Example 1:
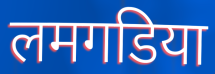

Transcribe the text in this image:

लमगडिया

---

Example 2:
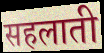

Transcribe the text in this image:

सहलाती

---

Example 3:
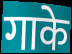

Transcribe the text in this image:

गाके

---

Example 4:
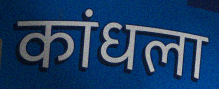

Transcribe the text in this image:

कांधला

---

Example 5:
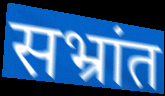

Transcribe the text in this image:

सभ्रांत